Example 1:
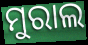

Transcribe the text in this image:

ମୁରାଲ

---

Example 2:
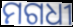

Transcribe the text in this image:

ମଗଧୀ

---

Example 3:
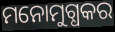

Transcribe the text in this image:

ମନୋମୁଗ୍ଧକର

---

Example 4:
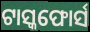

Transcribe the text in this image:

ଟାସ୍କଫୋର୍ସ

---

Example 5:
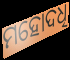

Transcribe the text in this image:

ମହୋଦଧି